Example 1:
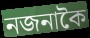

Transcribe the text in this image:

নজনাকৈ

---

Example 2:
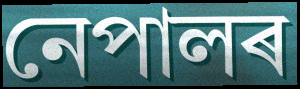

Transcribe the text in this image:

নেপালৰ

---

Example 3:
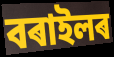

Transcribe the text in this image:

বৰাইলৰ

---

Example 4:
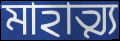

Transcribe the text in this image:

মাহাত্ম্য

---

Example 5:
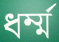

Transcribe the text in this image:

ধৰ্ম্ম